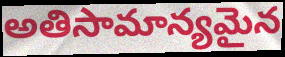
అతిసామాన్యమైన